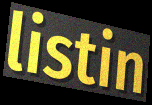
listin